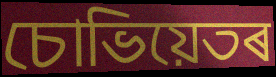
চোভিয়েতৰ